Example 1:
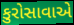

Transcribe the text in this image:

કુરોસાવાએ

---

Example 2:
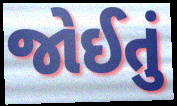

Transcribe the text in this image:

જોઈતું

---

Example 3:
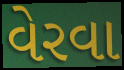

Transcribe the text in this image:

વેરવા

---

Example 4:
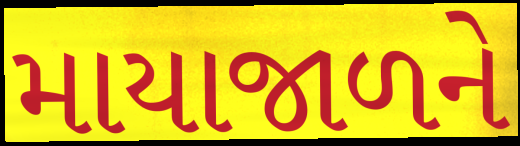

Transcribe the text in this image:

માયાજાળને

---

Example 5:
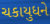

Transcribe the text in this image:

ચકાયુધને